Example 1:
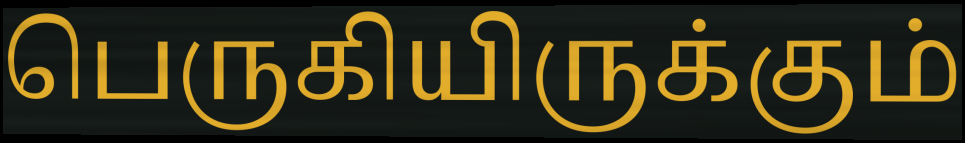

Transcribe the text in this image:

பெருகியிருக்கும்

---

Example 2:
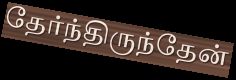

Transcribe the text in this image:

தேர்ந்திருந்தேன்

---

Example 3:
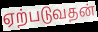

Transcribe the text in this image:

ஏற்படுவதன்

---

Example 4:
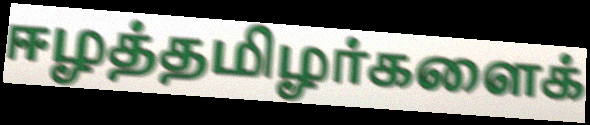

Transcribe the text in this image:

ஈழத்தமிழர்களைக்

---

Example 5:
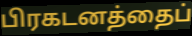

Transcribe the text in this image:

பிரகடனத்தைப்